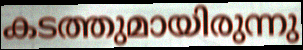
കടത്തുമായിരുന്നു